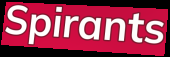
Spirants